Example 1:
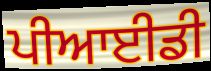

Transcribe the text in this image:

ਪੀਆਈਡੀ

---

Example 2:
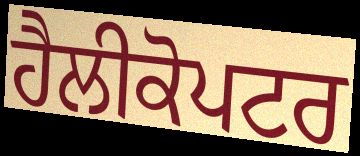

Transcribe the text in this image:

ਹੈਲੀਕੋਪਟਰ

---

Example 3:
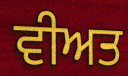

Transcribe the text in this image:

ਵੀਅਤ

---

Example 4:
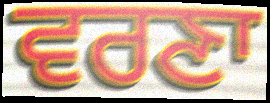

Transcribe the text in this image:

ਵਰਣਾ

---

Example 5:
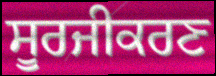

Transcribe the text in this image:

ਸੂਰਜੀਕਰਣ